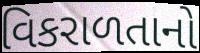
વિકરાળતાનો